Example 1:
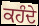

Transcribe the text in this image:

ਕਹੰਦੇ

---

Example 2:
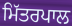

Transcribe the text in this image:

ਮਿੱਤਰਪਾਲ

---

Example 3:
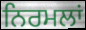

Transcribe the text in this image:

ਨਿਰਮਲਾਂ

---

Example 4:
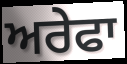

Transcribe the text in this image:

ਅਰੇਫਾ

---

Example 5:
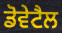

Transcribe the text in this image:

ਡੋਵੇਟੈਲ